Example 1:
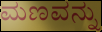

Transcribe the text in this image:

ಮಣವನ್ನು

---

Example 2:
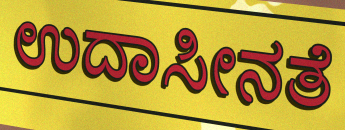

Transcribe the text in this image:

ಉದಾಸೀನತೆ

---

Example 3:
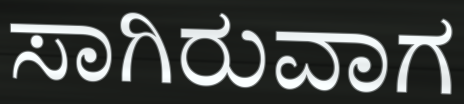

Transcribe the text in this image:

ಸಾಗಿರುವಾಗ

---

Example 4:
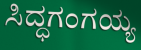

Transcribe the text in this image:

ಸಿದ್ಧಗಂಗಯ್ಯ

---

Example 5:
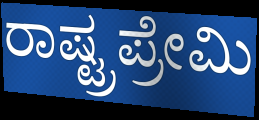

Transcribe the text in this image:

ರಾಷ್ಟ್ರಪ್ರೇಮಿ